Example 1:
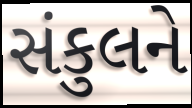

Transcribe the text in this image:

સંકુલને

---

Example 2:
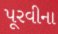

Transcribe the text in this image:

પૂરવીના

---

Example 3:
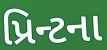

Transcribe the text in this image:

પ્રિન્ટના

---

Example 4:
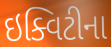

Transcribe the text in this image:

ઇક્વિટીના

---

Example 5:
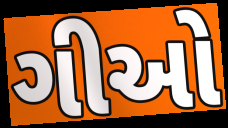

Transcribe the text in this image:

ગીઓ